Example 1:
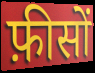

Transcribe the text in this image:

फ़ीसों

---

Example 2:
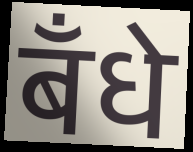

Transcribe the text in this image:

बँधे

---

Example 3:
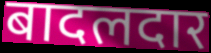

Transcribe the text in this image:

बादलदार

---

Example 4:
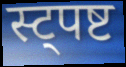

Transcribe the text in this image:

स्ट्पष्ट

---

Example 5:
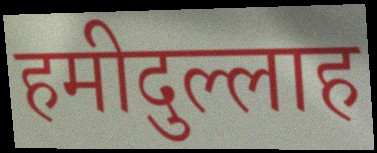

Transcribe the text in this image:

हमीदुल्लाह